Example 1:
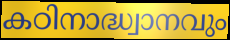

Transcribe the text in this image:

കഠിനാദ്ധ്വാനവും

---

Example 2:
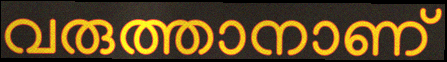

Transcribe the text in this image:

വരുത്താനാണ്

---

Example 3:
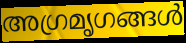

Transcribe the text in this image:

അഗ്രമൃഗങ്ങൾ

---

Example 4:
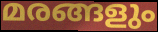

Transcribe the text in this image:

മരങ്ങളും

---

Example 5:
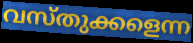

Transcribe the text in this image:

വസ്തുക്കളെന്ന